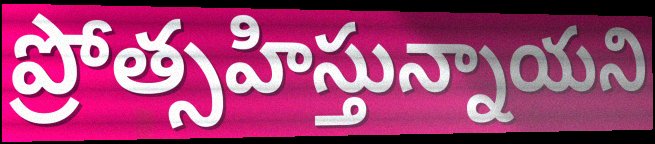
ప్రోత్సహిస్తున్నాయని